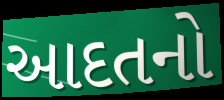
આદતનો